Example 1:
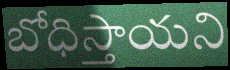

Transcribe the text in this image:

బోధిస్తాయని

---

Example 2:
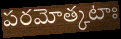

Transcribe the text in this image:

పరమోత్కటాః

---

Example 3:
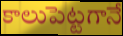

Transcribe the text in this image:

కాలుపెట్టగానే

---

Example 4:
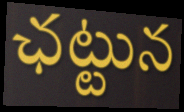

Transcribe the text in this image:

ఛట్టున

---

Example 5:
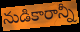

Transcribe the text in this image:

నుడికారాన్నీ